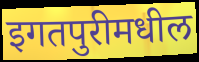
इगतपुरीमधील